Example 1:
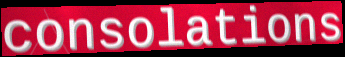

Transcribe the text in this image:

consolations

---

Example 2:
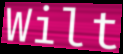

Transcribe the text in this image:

Wilt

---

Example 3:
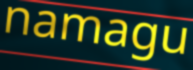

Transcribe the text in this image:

namagu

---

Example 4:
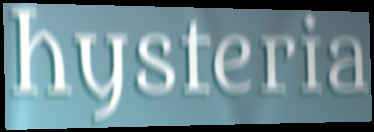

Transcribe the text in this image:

hysteria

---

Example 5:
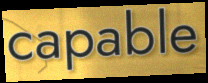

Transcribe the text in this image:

capable